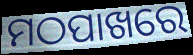
ମଠପାଖରେ